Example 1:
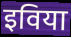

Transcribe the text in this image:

इविया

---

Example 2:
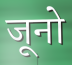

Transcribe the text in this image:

जूनो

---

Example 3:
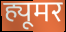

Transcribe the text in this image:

ह्यूमर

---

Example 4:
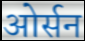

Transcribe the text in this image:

ओर्सन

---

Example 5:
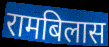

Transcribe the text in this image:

रामबिलास